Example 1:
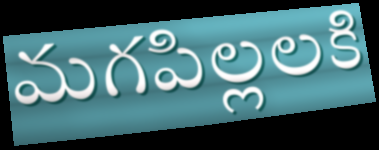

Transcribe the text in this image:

మగపిల్లలకి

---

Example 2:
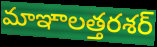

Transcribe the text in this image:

మాఞాలత్తరశర్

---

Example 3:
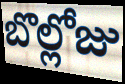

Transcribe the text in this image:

బొల్లోజు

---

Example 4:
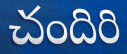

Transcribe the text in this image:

చందిరి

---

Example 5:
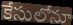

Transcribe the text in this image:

కేసులోనూ